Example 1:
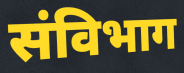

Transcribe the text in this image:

संविभाग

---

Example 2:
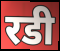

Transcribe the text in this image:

रडी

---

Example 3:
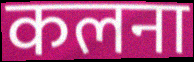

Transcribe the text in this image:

कलना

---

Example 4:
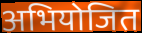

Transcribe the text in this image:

अभियोजित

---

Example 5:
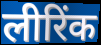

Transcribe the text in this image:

लीरिंक